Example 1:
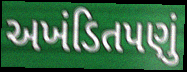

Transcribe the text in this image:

અખંડિતપણું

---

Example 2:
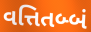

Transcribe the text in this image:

વત્તિતબ્બં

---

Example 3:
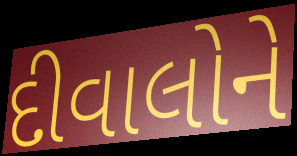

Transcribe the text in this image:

દીવાલોને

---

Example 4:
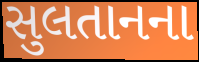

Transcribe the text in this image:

સુલતાનના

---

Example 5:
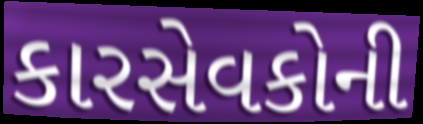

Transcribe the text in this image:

કારસેવકોની